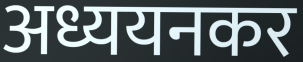
अध्ययनकर